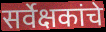
सर्वेक्षकांचे